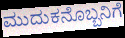
ಮುದುಕನೊಬ್ಬನಿಗೆ